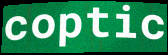
coptic